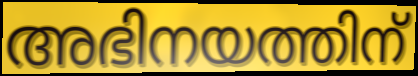
അഭിനയത്തിന്